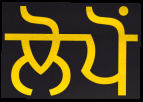
ਲੋਪੋਂ